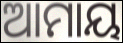
ଆମାୟ